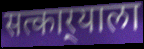
सत्कार्याला